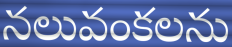
నలువంకలను